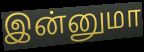
இன்னுமா